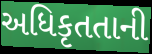
અધિકૃતતાની